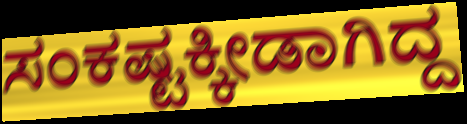
ಸಂಕಷ್ಟಕ್ಕೀಡಾಗಿದ್ದ